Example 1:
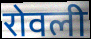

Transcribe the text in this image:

रोवली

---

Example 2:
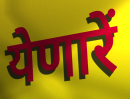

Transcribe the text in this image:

येणारें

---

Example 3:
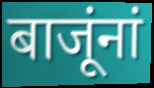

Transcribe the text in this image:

बाजूंनां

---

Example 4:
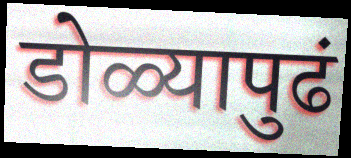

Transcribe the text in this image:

डोळ्यापुढं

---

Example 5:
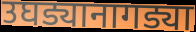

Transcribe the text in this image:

उघड्यानागड्या